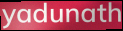
yadunath